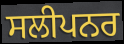
ਸਲੀਪਨਰ